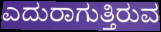
ಎದುರಾಗುತ್ತಿರುವ